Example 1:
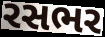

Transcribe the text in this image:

રસભર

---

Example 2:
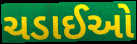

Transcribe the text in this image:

ચડાઈઓ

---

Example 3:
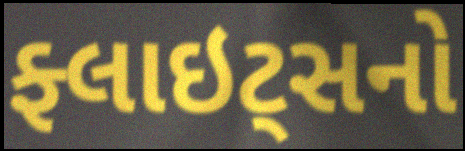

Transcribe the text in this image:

ફ્લાઇટ્સનો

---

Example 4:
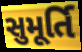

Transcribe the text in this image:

સુમૂર્તિ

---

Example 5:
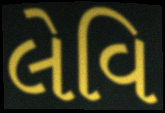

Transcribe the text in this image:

લેવિ